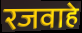
रजवाहे